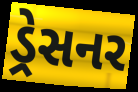
ડ્રેસનર